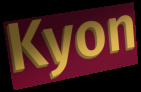
Kyon